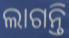
ଲାଗନ୍ତି